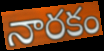
నారకం